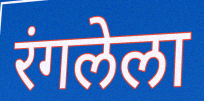
रंगलेला